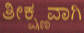
ತೀಕ್ಷ್ಣವಾಗಿ